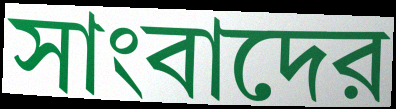
সাংবাদের